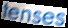
tenses